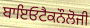
ਬਾਇਓਟੈਕਨੌਲੋਜੀ